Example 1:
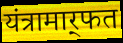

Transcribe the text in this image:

यंत्रामार्फत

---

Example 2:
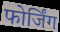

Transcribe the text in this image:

फोर्जिंग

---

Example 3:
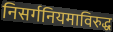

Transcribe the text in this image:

निसर्गनियमाविरुद्ध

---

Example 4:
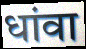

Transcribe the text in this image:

धांवा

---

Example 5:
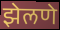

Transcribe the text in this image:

झेलणे